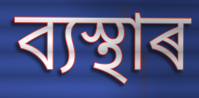
ব্যস্থাৰ